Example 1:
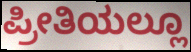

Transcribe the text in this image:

ಪ್ರೀತಿಯಲ್ಲೂ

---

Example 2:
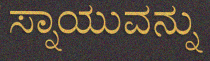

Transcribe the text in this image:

ಸ್ನಾಯುವನ್ನು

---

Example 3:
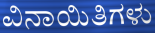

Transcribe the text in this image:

ವಿನಾಯಿತಿಗಳು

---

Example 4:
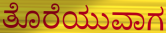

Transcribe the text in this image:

ತೊರೆಯುವಾಗ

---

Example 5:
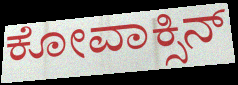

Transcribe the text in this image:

ಕೋವಾಕ್ಸಿನ್